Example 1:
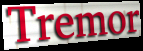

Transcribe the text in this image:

Tremor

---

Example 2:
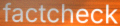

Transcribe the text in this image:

factcheck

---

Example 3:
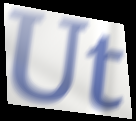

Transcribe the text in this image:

Ut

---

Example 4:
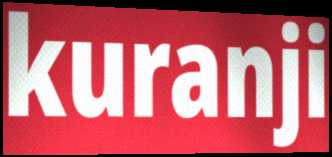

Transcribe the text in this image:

kuranji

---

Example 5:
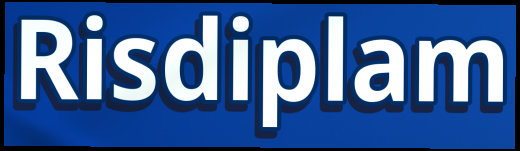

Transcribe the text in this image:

Risdiplam